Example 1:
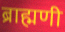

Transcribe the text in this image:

ब्राह्मणी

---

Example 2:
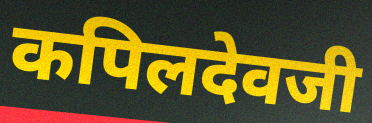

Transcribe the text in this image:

कपिलदेवजी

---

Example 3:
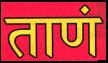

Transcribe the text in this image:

ताणं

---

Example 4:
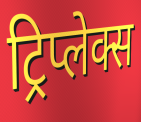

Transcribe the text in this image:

ट्रिप्लेक्स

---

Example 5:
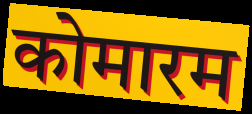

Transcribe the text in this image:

कोमारम